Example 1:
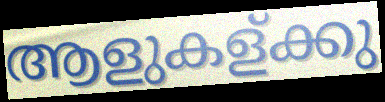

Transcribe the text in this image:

ആളുകള്ക്കു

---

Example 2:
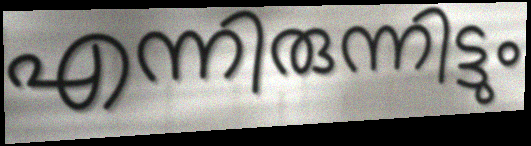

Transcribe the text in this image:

എന്നിരുന്നിട്ടും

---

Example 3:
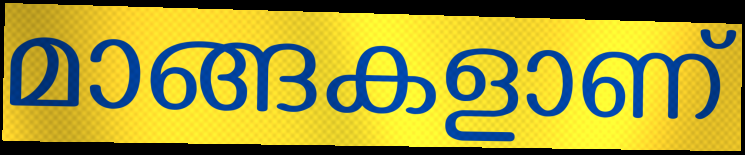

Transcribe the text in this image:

മാങ്ങകളാണ്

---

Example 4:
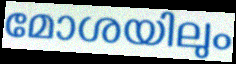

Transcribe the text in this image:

മോശയിലും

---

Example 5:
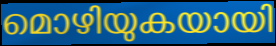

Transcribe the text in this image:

മൊഴിയുകയായി